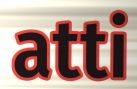
atti